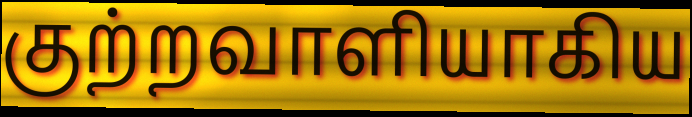
குற்றவாளியாகிய